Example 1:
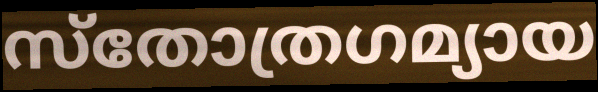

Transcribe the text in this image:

സ്തോത്രഗമ്യായ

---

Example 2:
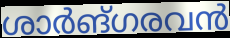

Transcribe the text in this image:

ശാർങ്ഗരവൻ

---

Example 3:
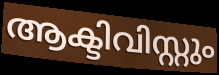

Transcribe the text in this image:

ആക്ടിവിസ്റ്റും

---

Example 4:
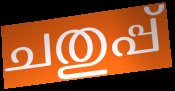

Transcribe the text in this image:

ചതുപ്പ്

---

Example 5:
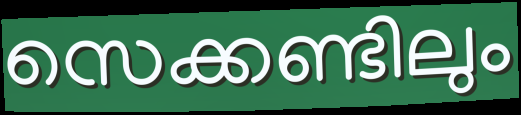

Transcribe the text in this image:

സെക്കണ്ടിലും